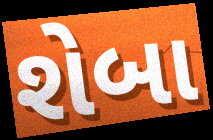
શેબા